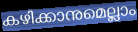
കഴിക്കാനുമെല്ലാം